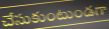
చేసుకుంటుండగా